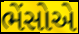
ભેંસોએ